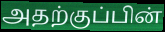
அதற்குப்பின்